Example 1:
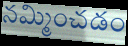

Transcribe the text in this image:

నమ్మించడం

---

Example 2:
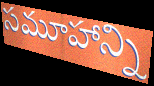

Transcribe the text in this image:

సమూహాన్ని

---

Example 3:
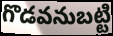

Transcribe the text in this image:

గొడవనుబట్టి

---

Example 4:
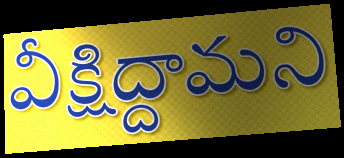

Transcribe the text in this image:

వీక్షిద్దామని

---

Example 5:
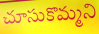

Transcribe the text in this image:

చూసుకొమ్మని